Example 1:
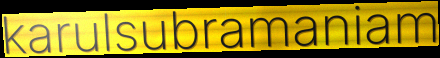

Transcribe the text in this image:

karulsubramaniam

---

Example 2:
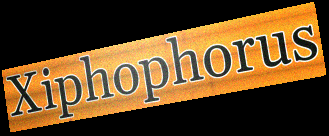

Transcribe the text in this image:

Xiphophorus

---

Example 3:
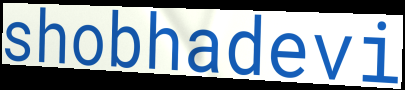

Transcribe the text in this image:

shobhadevi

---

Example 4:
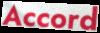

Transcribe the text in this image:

Accord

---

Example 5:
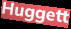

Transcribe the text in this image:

Huggett